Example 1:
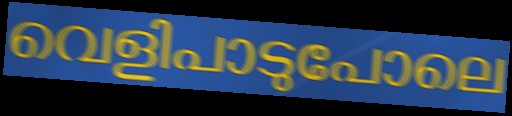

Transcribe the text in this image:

വെളിപാടുപോലെ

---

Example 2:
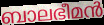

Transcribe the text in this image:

ബാലഭീമൻ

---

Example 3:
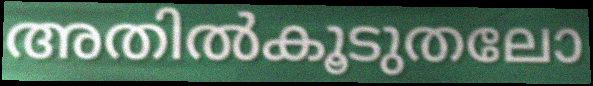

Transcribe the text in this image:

അതിൽകൂടുതലോ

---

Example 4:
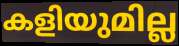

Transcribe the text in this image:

കളിയുമില്ല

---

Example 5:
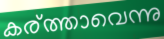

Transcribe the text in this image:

കര്ത്താവെന്നു